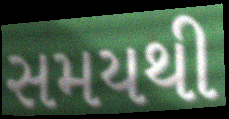
સમયથી